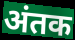
अंतक